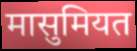
मासुमियत